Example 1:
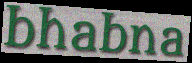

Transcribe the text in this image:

bhabna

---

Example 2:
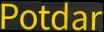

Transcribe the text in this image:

Potdar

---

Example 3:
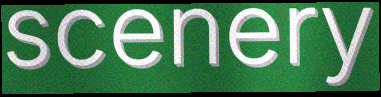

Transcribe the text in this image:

scenery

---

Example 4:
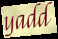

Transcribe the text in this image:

yadd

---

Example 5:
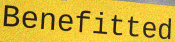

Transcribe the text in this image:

Benefitted